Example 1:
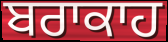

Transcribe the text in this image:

ਬਰਾਕਾਹ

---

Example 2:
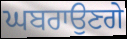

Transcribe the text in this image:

ਘਬਰਾਉਣਗੇ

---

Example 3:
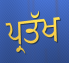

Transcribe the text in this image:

ਪ੍ਰਤੱਖ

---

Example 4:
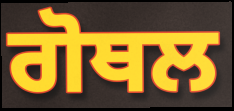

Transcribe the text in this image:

ਗੋਥਲ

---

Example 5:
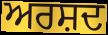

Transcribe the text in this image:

ਅਰਸ਼ਦ